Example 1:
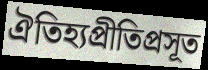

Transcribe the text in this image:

ঐতিহ্যপ্রীতিপ্রসূত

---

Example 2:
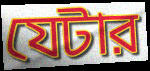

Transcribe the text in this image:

যেটার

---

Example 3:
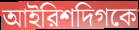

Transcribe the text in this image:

আইরিশদিগকে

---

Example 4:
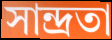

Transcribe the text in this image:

সান্দ্রতা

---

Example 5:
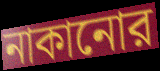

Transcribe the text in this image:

নাকানোর